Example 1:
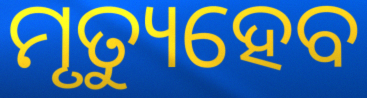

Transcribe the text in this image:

ମୃତ୍ୟୁହେବ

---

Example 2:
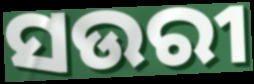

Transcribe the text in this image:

ସଉରୀ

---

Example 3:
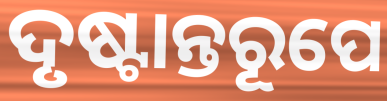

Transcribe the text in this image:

ଦୃଷ୍ଟାନ୍ତରୂପେ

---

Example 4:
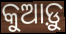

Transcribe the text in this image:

କୁଆଡ଼ୁ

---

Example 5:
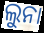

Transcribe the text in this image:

ଲୁନା